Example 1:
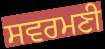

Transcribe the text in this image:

ਸਵਰਮਣੀ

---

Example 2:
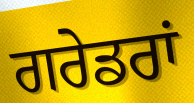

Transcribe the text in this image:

ਗਰੇਡਰਾਂ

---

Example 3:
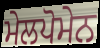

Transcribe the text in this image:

ਮੇਲਪੋਮੇਨ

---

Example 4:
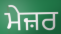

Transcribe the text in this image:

ਮੇਜ਼ਰ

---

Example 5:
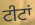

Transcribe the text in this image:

ਟੀਟਾਂ